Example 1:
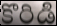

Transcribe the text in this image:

కొరిడి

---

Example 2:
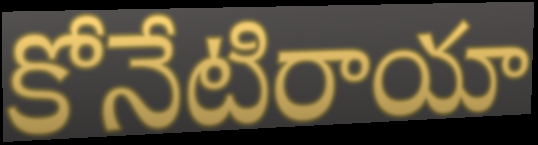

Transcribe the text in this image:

కోనేటిరాయా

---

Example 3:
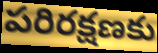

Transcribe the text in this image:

పరిరక్షణకు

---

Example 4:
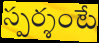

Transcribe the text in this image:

స్పర్శంటే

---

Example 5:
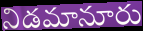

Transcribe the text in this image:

నిడమానూరు